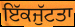
ਇੱਕਜੁੱਟਤਾ